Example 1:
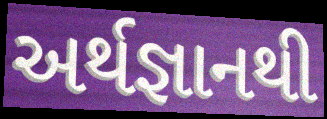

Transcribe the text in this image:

અર્થજ્ઞાનથી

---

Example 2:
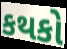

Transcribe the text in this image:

કથકો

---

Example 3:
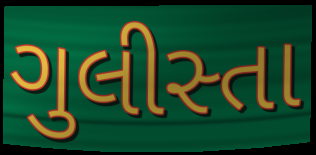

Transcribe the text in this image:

ગુલીસ્તા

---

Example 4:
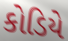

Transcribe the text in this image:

કોડિયે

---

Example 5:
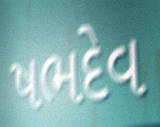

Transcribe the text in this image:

ષભદેવ